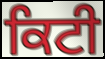
ਕਿਟੀ